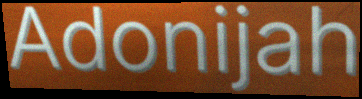
Adonijah